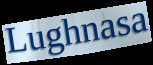
Lughnasa